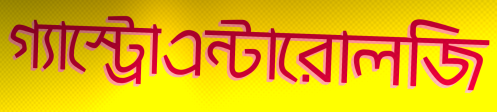
গ্যাস্ট্রোএন্টারোলজি